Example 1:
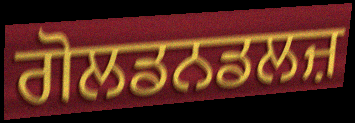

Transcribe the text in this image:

ਗੋਲਡਨਡਲਜ਼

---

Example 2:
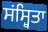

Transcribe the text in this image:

ਸਂਸ੍ਥਿਤਾ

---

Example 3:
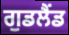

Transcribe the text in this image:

ਗੁਡਲੈਂਡ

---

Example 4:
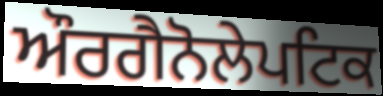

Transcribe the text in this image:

ਔਰਗੈਨੋਲੇਪਟਿਕ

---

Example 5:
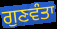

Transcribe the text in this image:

ਗੁਣਵੰਤਾ